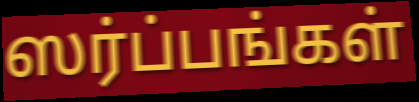
ஸர்ப்பங்கள்